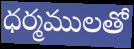
ధర్మములతో